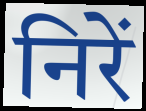
निरें